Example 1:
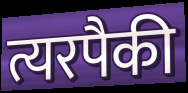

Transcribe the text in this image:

त्यरपैकी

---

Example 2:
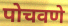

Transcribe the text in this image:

पोचवणे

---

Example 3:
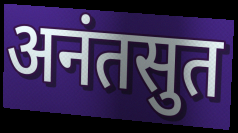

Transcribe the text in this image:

अनंतसुत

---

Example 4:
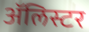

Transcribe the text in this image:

ॲलिस्टर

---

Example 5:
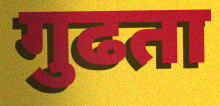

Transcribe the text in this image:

गुढता